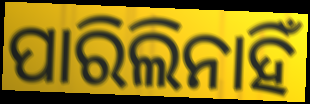
ପାରିଲିନାହିଁ